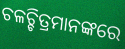
ଚଳଚ୍ଚିତ୍ରମାନଙ୍କରେ